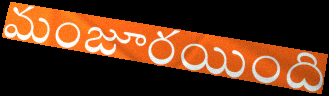
మంజూరయింది